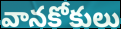
వానకోకులు